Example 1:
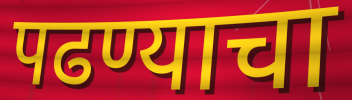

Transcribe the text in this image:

पढण्याचा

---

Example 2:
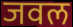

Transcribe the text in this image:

जवल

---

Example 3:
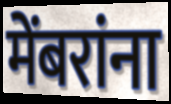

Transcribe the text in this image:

मेंबरांना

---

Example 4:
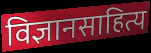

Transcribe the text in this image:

विज्ञानसाहित्य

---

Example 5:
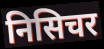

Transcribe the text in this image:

निसिचर